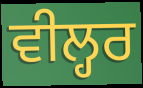
ਵੀਲ੍ਹਰ